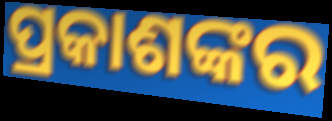
ପ୍ରକାଶଙ୍କର